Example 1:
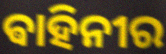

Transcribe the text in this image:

ଵାହିନୀର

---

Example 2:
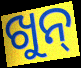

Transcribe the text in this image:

ଖୁନ୍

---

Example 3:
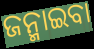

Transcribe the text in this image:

ଜନ୍ମାଇବା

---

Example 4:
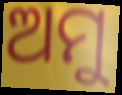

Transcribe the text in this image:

ଅମୁ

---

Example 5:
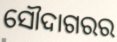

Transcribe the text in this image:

ସୌଦାଗରର